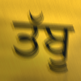
ਤੱਬੂ